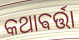
କଥାଵର୍ତ୍ତା